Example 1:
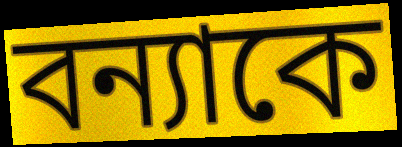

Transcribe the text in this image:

বন্যাকে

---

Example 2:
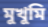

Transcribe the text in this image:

মুখুমি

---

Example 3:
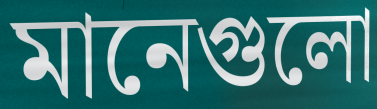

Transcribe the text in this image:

মানেগুলো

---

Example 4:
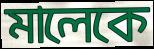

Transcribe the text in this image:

মালেকে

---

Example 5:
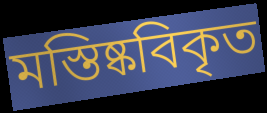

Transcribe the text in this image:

মস্তিষ্কবিকৃত